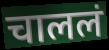
चाललं